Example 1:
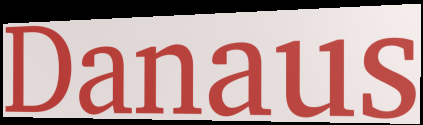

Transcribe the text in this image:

Danaus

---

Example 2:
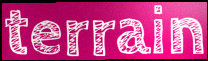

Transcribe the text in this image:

terrain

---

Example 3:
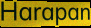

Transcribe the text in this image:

Harapan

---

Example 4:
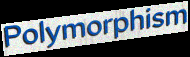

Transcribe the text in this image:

Polymorphism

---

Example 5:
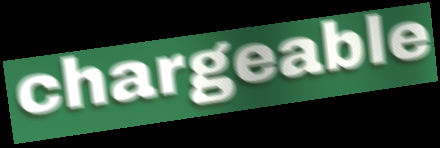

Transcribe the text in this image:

chargeable